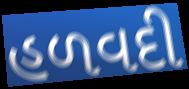
હળવદી